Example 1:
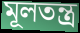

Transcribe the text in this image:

মূলতন্ত্র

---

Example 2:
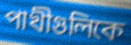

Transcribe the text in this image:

পাখীগুলিকে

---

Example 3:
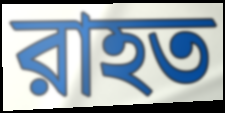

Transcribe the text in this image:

রাহত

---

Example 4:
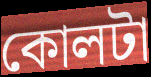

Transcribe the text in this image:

কোলটা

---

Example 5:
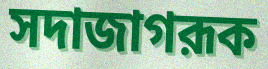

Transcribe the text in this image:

সদাজাগরূক